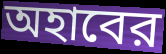
অহাবের